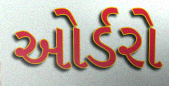
ઓર્ડરો